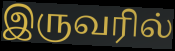
இருவரில்